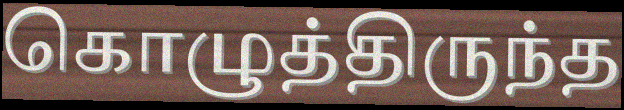
கொழுத்திருந்த